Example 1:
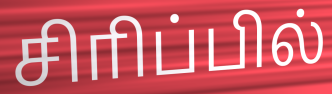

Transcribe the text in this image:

சிரிப்பில்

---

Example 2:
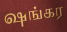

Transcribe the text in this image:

ஷங்கர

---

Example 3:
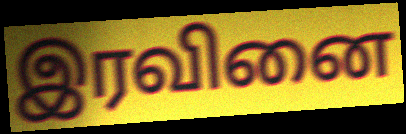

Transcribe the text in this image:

இரவினை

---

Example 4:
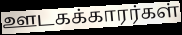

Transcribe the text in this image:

ஊடகக்காரர்கள்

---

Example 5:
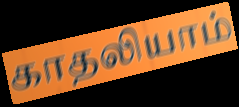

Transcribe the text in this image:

காதலியாம்